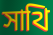
সাথি